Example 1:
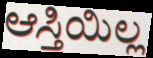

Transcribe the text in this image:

ಆಸ್ತಿಯಿಲ್ಲ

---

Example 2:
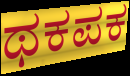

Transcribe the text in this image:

ಥಕಪಕ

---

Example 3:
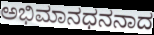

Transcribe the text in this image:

ಅಭಿಮಾನಧನನಾದ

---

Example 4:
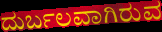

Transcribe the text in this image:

ದುರ್ಬಲವಾಗಿರುವ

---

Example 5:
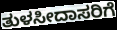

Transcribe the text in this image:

ತುಳಸೀದಾಸರಿಗೆ